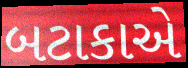
બટાકાએ